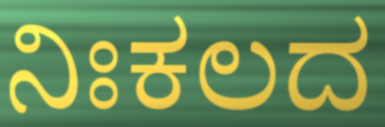
ನಿಃಕಲದ